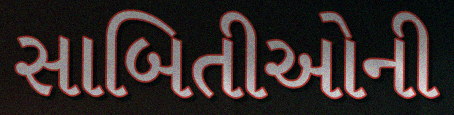
સાબિતીઓની